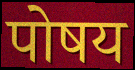
पोषय